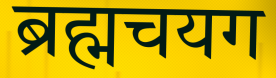
ब्रह्मचयग